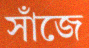
সাঁজে